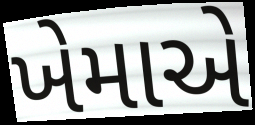
ખેમાએ